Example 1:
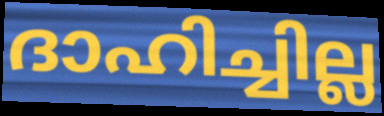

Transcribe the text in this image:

ദാഹിച്ചില്ല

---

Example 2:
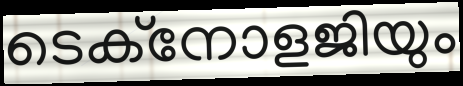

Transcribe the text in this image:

ടെക്നോളജിയും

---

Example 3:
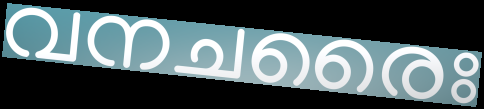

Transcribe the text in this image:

വനചരൈഃ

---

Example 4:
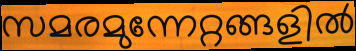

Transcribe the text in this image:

സമരമുന്നേറ്റങ്ങളിൽ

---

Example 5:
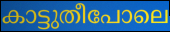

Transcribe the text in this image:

കാട്ടുതീപോലെ